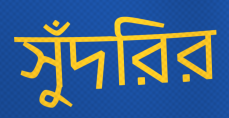
সুঁদরির